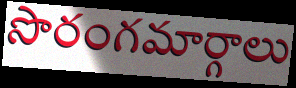
సొరంగమార్గాలు